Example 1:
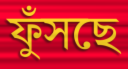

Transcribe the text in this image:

ফুঁসছে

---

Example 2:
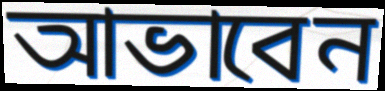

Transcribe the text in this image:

আভাবেন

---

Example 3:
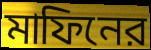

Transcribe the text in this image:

মাফিনের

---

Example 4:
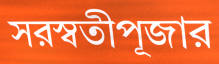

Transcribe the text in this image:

সরস্বতীপূজার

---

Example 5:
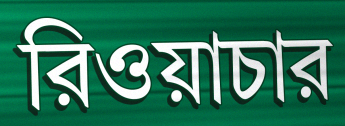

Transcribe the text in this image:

রিওয়াচার